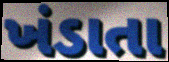
ખંડાતા